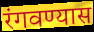
रंगवण्यास